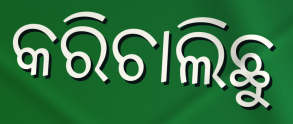
କରିଚାଲିଛୁ